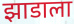
झाडाला